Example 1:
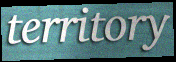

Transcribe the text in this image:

territory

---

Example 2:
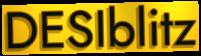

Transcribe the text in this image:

DESIblitz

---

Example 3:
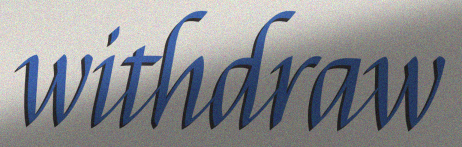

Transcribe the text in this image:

withdraw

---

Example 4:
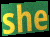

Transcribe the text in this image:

she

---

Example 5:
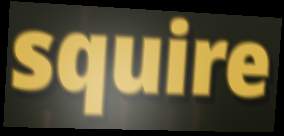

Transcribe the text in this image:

squire